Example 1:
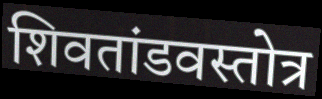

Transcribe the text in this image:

शिवतांडवस्तोत्र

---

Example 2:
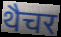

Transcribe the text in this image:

थैचर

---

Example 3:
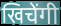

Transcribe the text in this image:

खिचेंगी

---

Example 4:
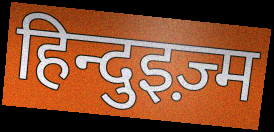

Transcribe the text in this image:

हिन्दुइज़्म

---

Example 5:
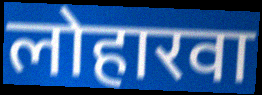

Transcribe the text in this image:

लोहारवा